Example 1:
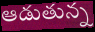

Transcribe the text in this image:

ఆడుతున్న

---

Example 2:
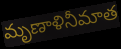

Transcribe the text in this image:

మృణాళినీమాత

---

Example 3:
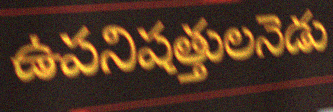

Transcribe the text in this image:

ఉపనిషత్తులనెడు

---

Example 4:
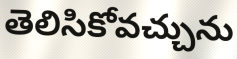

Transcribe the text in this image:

తెలిసికోవచ్చును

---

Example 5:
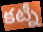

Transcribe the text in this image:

కట్నీ